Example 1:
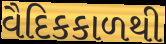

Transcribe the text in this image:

વૈદિકકાળથી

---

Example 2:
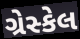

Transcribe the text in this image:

ગ્રેસ્કેલ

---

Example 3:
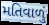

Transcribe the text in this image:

મતિવાળું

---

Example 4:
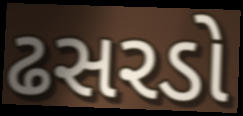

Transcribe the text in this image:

ઢસરડો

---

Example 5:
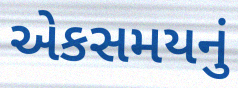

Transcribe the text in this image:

એકસમયનું